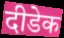
दीडेक